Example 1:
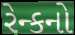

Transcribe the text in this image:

રેન્કનો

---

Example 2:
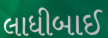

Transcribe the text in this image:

લાધીબાઈ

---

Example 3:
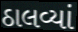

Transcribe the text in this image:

ઠાલવ્યાં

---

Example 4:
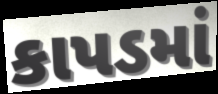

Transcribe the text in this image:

કાપડમાં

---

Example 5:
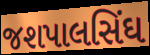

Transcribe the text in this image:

જશપાલસિંઘ